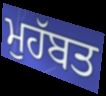
ਮੁਹੱਬਤ